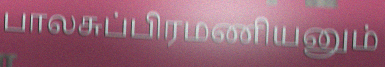
பாலசுப்பிரமணியனும்